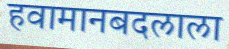
हवामानबदलाला